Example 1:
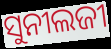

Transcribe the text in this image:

ସୁନୀଲଜୀ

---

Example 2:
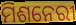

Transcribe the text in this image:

ମିଶନେରୀ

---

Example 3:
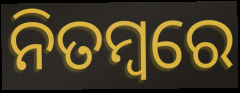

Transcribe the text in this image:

ନିତମ୍ବରେ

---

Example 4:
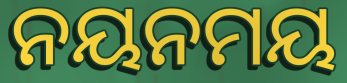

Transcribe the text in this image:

ନୟନମୟ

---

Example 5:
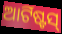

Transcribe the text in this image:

ଆର୍ଟିଷ୍ଟସ୍